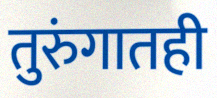
तुरुंगातही